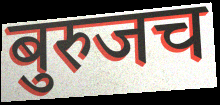
बुरुजच